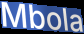
Mbola